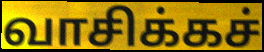
வாசிக்கச்